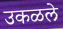
उकळले